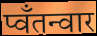
प्वॅंतन्वार